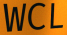
WCL